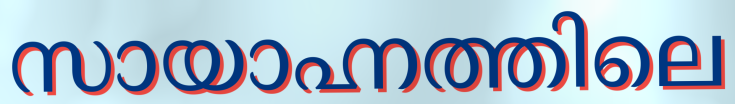
സായാഹ്നത്തിലെ